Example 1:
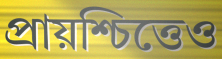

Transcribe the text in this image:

প্রায়শ্চিত্তেও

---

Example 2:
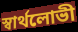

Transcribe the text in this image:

স্বার্থলোভী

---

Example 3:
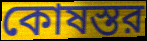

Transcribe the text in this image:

কোষস্তর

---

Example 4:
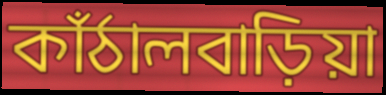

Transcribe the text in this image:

কাঁঠালবাড়িয়া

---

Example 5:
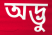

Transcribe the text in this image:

অদ্ভু